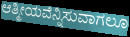
ಆತ್ಮೀಯವೆನ್ನಿಸುವಾಗಲೂ